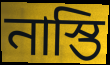
নাস্তি